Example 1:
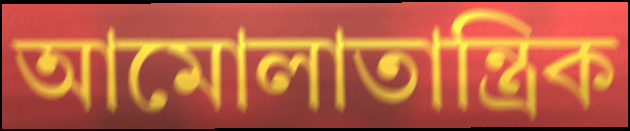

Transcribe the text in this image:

আমোলাতান্ত্ৰিক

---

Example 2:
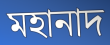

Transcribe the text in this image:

মহানাদ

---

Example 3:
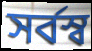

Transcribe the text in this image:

সৰ্বস্ব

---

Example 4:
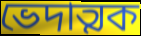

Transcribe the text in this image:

ভেদাত্মক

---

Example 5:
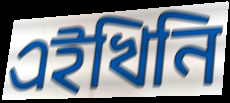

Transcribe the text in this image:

এইখিনি